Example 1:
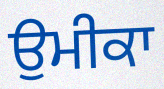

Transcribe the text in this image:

ਉਮੀਕਾ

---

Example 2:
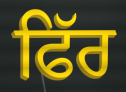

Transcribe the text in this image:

ਫਿੱਰ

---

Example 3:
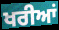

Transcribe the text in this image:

ਖਰੀਆਂ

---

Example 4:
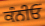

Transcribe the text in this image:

ਕੰਨੀਓਂ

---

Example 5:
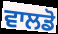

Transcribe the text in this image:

ਵਾਲਡੋ